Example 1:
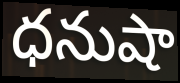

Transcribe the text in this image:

ధనుషా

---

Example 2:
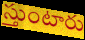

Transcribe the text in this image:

స్తుంటారు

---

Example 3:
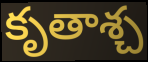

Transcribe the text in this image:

కృతాశ్చ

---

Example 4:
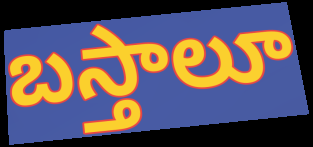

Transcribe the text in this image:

బస్తాలూ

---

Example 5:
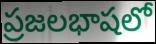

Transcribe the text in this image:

ప్రజలభాషలో